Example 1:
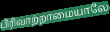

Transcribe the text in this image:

பிரிவாற்றாமையாலே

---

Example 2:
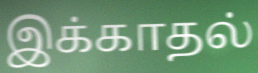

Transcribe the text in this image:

இக்காதல்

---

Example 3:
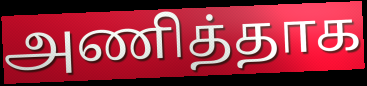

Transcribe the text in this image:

அணித்தாக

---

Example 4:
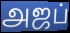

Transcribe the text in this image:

அஜப்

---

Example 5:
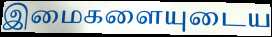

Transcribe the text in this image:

இமைகளையுடைய